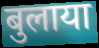
बुलाया